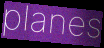
planes